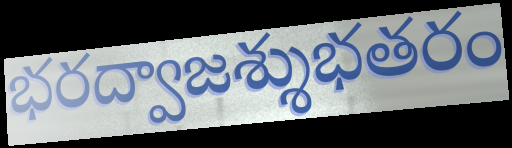
భరద్వాజశ్శుభతరం